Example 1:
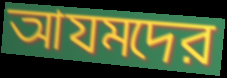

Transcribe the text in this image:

আযমদের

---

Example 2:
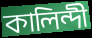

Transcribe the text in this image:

কালিন্দী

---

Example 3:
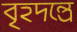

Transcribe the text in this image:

বৃহদন্ত্রে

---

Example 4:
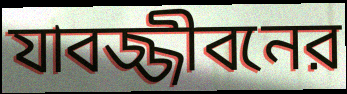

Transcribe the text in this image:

যাবজ্জীবনের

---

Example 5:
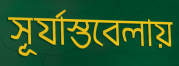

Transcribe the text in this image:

সূর্যাস্তবেলায়